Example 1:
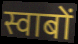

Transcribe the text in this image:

स्वाबों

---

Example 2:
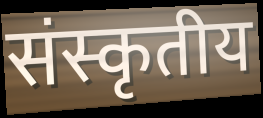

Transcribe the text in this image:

संस्कृतीय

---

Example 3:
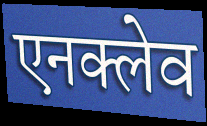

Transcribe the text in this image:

एनक्‍लेव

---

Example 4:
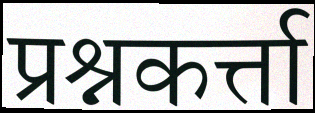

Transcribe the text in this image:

प्रश्नकर्त्ता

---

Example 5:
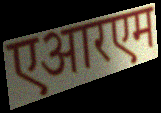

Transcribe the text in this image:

एआरएम